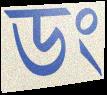
ডং